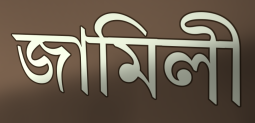
জামিলী